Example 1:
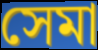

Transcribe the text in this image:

সেমা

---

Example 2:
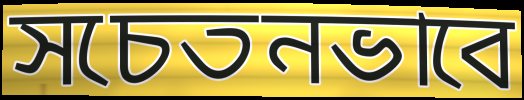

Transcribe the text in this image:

সচেতনভাবে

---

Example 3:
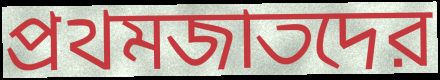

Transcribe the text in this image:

প্রথমজাতদের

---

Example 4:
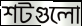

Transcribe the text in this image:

শটগুলো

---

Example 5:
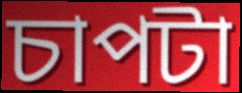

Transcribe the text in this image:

চাপটা